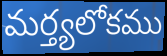
మర్త్యలోకము